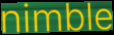
nimble